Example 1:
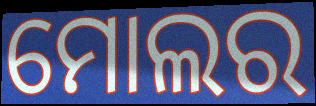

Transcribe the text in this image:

ମୋଲର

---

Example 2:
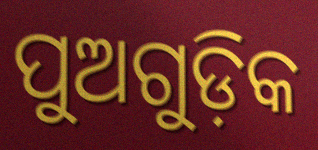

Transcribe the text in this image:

ପୁଅଗୁଡ଼ିକ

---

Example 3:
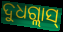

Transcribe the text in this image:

ଦୁଧଗ୍ଲାସ୍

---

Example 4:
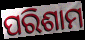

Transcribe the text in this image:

ପରିଶାମ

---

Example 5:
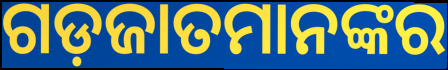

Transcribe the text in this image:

ଗଡ଼ଜାତମାନଙ୍କର